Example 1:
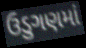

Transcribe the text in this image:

ઉડુગણમાં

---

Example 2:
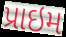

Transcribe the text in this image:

પ્રાઇમ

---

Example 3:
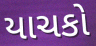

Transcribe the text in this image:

યાચકો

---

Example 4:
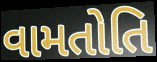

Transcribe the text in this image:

વામતોતિ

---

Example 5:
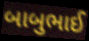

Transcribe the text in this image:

બાબુભાઈ